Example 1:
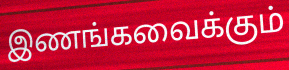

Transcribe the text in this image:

இணங்கவைக்கும்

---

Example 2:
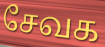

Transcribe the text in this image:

சேவக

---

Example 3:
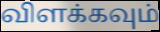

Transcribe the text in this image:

விளக்கவும்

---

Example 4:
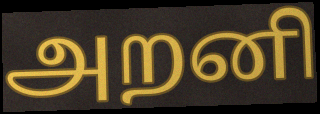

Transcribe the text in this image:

அறனி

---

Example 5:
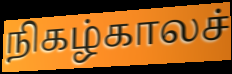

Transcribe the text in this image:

நிகழ்காலச்